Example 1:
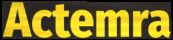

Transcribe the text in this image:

Actemra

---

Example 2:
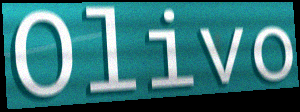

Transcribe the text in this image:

Olivo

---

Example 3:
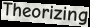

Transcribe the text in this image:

Theorizing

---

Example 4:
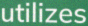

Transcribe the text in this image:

utilizes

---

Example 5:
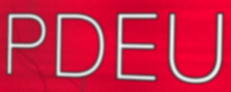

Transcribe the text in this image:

PDEU